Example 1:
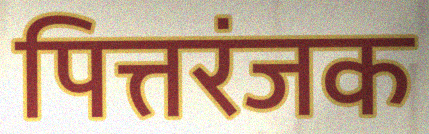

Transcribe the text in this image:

पित्तरंजक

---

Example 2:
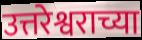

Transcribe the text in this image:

उत्तरेश्वराच्या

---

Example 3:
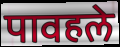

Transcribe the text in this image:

पावहले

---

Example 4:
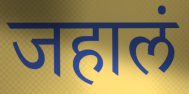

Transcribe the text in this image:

जहालं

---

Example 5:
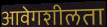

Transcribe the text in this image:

आवेगशीलता